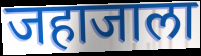
जहाजाला